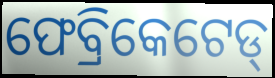
ଫେବ୍ରିକେଟେଡ୍